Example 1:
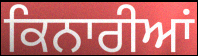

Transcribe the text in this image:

ਕਿਨਾਰੀਆਂ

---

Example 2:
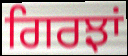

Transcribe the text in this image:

ਗਿਰਝਾਂ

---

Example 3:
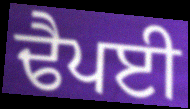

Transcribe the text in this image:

ਢੈਪਈ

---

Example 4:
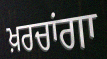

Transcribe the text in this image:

ਖ਼ਰਚਾਂਗਾ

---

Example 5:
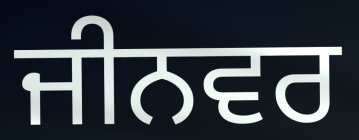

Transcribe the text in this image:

ਜੀਨਵਰ